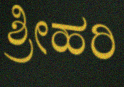
ಶ್ರೀಹರಿ